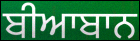
ਬੀਆਬਾਨ